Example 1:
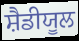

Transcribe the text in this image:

ਸ਼ੈਡੀਯੂਲ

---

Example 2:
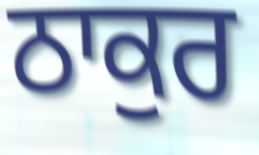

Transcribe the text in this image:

ਠਾਕੁਰ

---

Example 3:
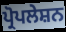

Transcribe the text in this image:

ਪ੍ਰੋਪਲੇਸ਼ਨ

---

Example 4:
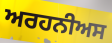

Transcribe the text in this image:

ਅਰਹਨੀਅਸ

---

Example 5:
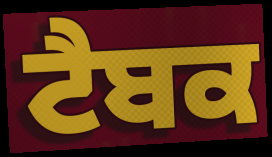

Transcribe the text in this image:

ਟੈਬਕ